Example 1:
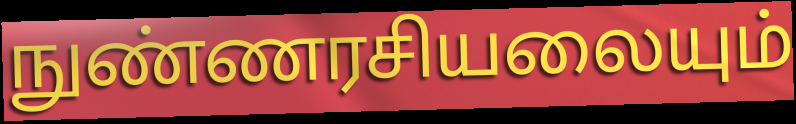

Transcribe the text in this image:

நுண்ணரசியலையும்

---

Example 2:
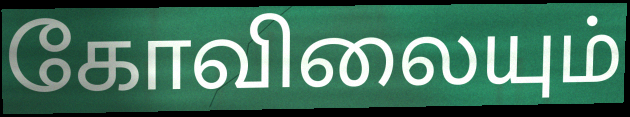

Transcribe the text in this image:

கோவிலையும்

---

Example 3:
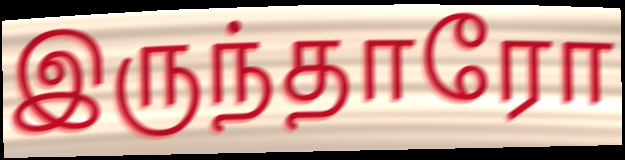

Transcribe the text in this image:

இருந்தாரோ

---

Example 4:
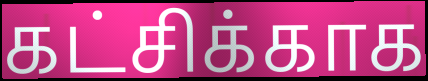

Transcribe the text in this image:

கட்சிக்காக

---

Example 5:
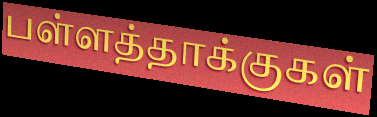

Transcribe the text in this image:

பள்ளத்தாக்குகள்